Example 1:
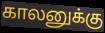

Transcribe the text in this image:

காலனுக்கு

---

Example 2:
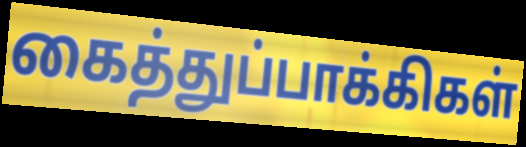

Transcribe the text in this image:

கைத்துப்பாக்கிகள்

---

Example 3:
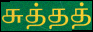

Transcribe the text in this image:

சுத்தத்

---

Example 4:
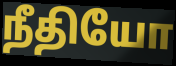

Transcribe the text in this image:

நீதியோ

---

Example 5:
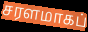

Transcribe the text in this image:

சரளமாகப்